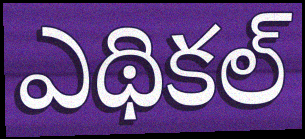
ఎథికల్